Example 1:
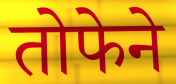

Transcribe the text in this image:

तोफेने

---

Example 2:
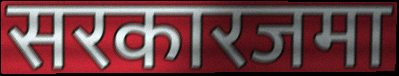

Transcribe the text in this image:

सरकारजमा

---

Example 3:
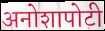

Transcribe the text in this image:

अनोशापोटी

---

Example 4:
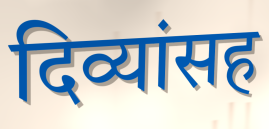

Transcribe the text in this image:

दिव्यांसह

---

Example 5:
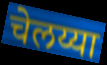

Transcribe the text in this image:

चेलय्या